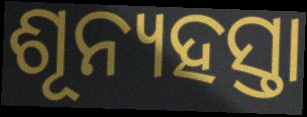
ଶୂନ୍ୟହସ୍ତା